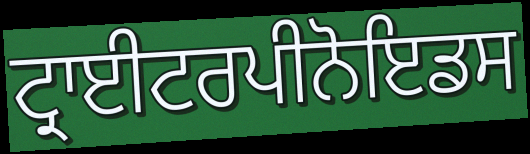
ਟ੍ਰਾਈਟਰਪੀਨੋਇਡਸ